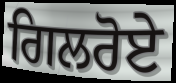
ਗਿਲਰੋਏ